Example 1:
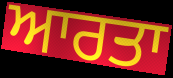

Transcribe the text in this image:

ਆਰਤਾ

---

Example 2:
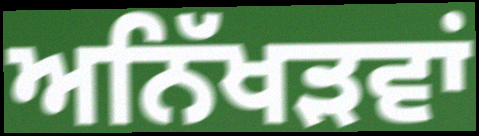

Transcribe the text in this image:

ਅਨਿੱਖੜਵਾਂ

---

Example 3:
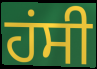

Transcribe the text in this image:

ਹਂਸੀ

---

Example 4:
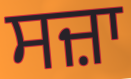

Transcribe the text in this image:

ਸਜ਼ਾ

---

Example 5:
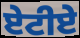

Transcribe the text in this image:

ਏਟੀਏ